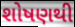
શોષણથી